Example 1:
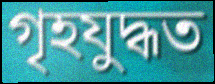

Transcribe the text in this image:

গৃহযুদ্ধত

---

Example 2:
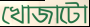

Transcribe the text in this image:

খোজাটো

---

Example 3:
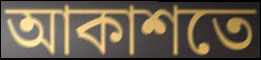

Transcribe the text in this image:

আকাশতে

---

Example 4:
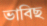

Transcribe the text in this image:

ভাবিছ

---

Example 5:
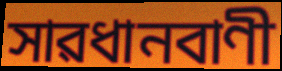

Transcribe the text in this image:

সাৱধানবাণী